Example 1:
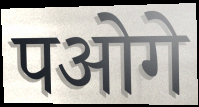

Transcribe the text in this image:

पओगे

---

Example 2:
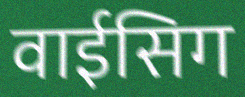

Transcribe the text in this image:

वाईसिग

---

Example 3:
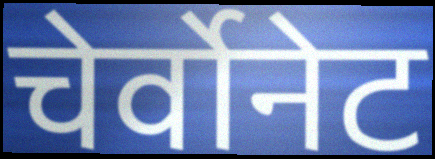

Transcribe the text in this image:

चेर्वोनेट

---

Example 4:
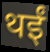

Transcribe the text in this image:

थईं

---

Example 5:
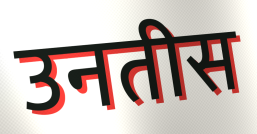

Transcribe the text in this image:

उनतीस